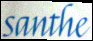
santhe